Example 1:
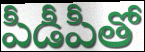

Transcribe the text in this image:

పీడీపీతో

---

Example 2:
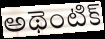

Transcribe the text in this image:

అథెంటిక్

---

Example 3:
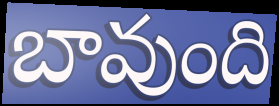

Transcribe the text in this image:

బావుంది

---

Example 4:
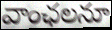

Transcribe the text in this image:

వాంఛలనూ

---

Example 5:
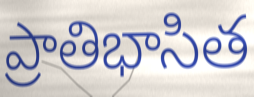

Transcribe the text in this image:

ప్రాతిభాసిత